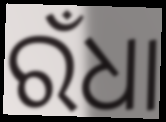
ରଁଧା